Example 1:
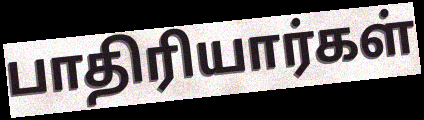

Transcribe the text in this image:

பாதிரியார்கள்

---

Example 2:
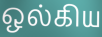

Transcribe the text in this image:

ஒல்கிய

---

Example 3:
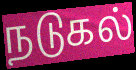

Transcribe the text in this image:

நடுகல்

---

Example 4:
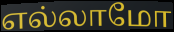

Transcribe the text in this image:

எல்லாமோ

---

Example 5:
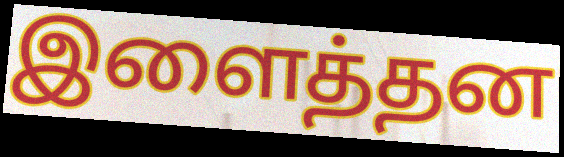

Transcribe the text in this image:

இளைத்தன